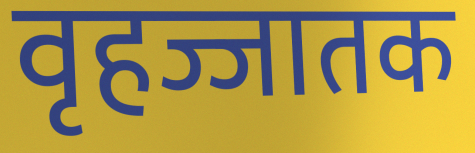
वृहज्जातक